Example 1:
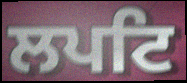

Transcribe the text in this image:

ਲਪਟਿ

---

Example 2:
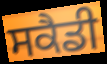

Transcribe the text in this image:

ਸਕੈਡੀ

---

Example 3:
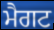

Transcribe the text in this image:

ਮੈਗਟ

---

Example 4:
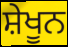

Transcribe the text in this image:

ਸ਼ੇਖੂਨ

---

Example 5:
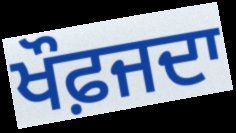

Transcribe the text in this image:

ਖੌਫ਼ਜਦਾ